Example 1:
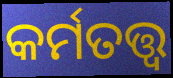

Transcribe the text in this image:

କର୍ମତତ୍ତ୍ୱ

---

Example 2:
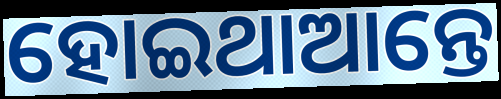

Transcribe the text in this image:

ହୋଇଥାଆନ୍ତେ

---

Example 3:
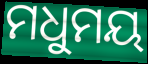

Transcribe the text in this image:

ମଧୁମୟ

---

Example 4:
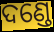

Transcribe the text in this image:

ଦଣ୍ଡେ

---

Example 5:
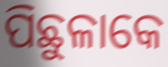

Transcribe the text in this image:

ପିଛୁଳାକେ